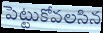
పెట్టుకోవలసిన